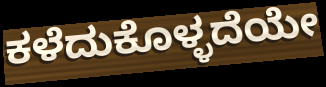
ಕಳೆದುಕೊಳ್ಳದೆಯೇ